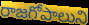
రాజగోపాలుని